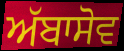
ਅੱਬਾਸੋਵ